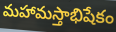
మహామస్తాభిషేకం